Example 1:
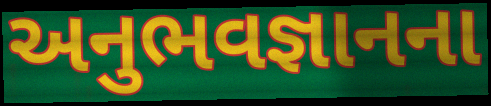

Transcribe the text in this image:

અનુભવજ્ઞાનના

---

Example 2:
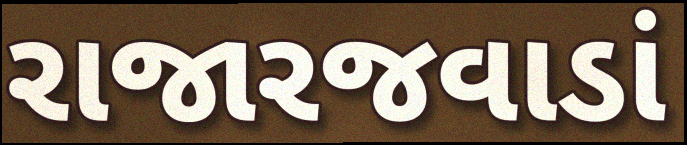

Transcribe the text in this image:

રાજારજવાડાં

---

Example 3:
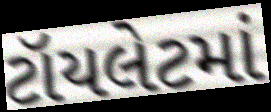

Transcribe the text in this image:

ટૉયલેટમાં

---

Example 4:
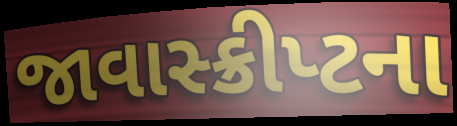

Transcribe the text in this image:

જાવાસ્ક્રીપ્ટના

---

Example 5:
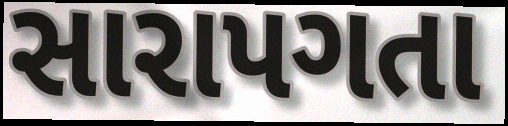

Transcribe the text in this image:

સારાપગતા